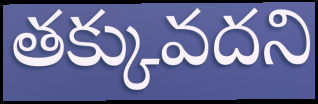
తక్కువదని